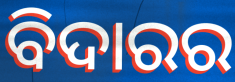
ବିଦାରର